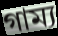
গাম্য